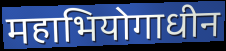
महाभियोगाधीन